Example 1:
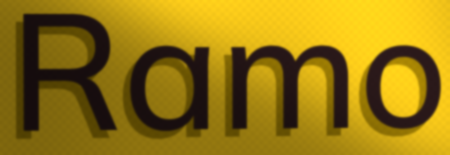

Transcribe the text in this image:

Ramo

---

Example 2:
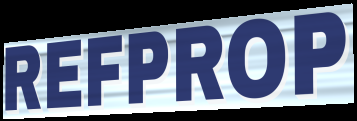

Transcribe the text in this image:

REFPROP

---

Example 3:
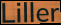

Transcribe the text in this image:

Liller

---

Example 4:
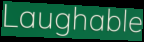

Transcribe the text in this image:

Laughable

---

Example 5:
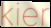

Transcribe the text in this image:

kier